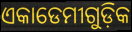
ଏକାଡେମୀଗୁଡ଼ିକ